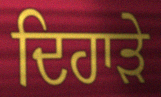
ਦਿਹਾਡ਼ੇ